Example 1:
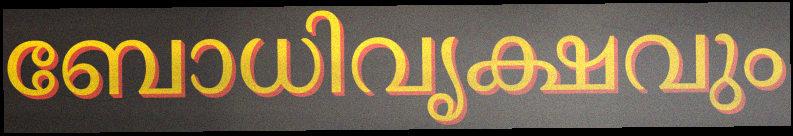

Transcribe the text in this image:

ബോധിവൃക്ഷവും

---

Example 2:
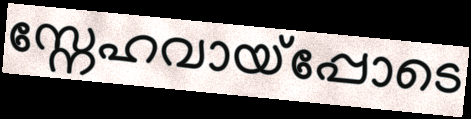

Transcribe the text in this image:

സ്നേഹവായ്പ്പോടെ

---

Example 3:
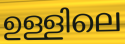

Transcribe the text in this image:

ഉള്ളിലെ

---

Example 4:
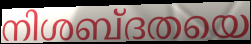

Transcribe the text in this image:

നിശബ്ദതയെ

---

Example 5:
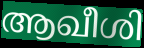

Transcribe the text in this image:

ആഖീശി